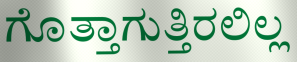
ಗೊತ್ತಾಗುತ್ತಿರಲಿಲ್ಲ